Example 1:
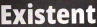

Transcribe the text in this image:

Existent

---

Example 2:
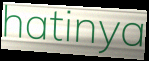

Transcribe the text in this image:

hatinya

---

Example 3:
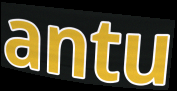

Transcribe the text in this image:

antu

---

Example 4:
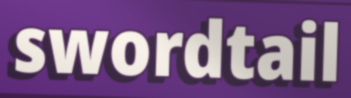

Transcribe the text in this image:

swordtail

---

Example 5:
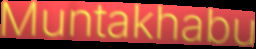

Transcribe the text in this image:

Muntakhabu